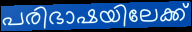
പരിഭാഷയിലേക്ക്